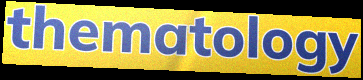
thematology